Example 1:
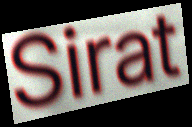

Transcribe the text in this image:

Sirat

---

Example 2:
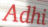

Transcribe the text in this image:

Adhi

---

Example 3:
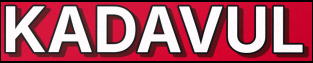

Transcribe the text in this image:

KADAVUL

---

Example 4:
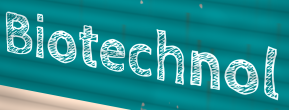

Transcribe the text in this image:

Biotechnol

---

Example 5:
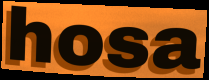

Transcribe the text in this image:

hosa